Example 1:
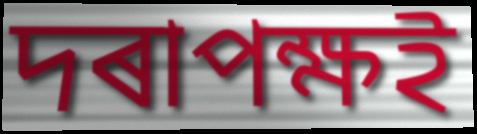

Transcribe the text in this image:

দৰাপক্ষই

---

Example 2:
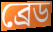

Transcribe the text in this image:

ব্ৰেড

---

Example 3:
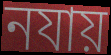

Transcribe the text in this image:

নযায়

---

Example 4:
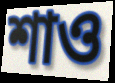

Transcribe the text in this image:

শাও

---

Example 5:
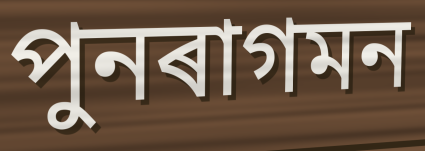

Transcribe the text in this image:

পুনৰাগমন